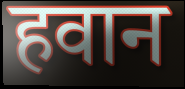
हवान